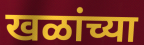
खळांच्या